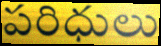
పరిధులు